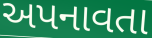
અપનાવતા